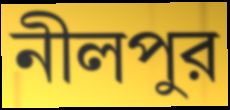
নীলপুর